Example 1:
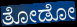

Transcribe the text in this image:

ತೋಡೋ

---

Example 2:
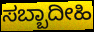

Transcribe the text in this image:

ಸಬ್ಬಾದೀಹಿ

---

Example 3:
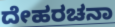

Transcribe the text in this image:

ದೇಹರಚನಾ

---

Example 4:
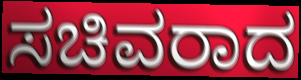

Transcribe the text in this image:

ಸಚಿವರಾದ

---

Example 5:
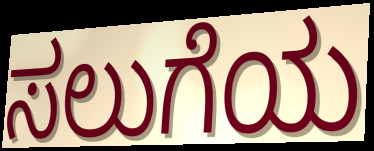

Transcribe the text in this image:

ಸಲುಗೆಯ